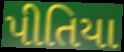
પીતિયા